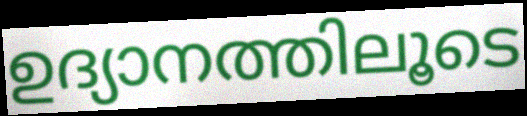
ഉദ്യാനത്തിലൂടെ